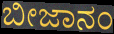
ಬೀಜಾನಂ